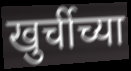
खुर्चीच्या